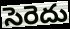
సెరెదు